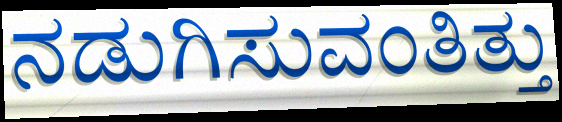
ನಡುಗಿಸುವಂತಿತ್ತು